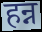
हन्न